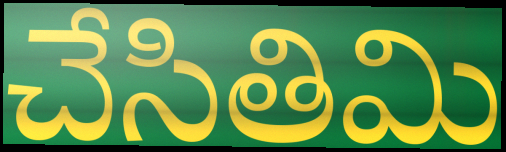
చేసితిమి